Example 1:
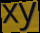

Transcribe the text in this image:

xy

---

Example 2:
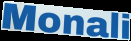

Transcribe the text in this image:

Monali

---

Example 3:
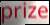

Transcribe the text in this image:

prize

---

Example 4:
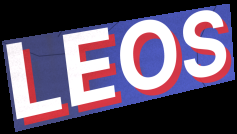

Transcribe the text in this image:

LEOS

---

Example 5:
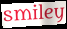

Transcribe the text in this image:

smiley